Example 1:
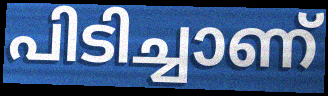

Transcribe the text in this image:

പിടിച്ചാണ്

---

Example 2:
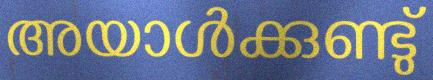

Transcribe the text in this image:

അയാൾക്കുണ്ടു്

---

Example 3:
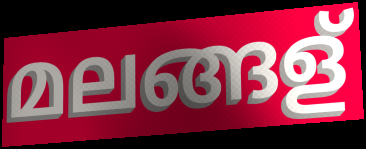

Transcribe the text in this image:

മലങ്ങള്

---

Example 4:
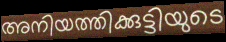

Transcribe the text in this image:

അനിയത്തിക്കുട്ടിയുടെ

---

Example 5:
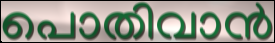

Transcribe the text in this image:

പൊതിവാൻ